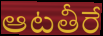
ఆటతీరే